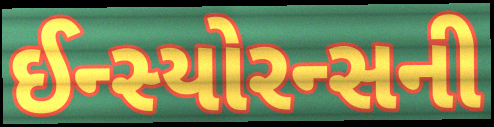
ઈન્સ્યોરન્સની